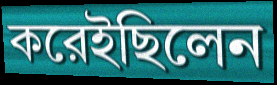
করেইছিলেন